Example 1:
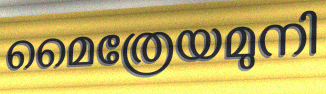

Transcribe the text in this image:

മൈത്രേയമുനി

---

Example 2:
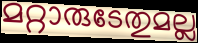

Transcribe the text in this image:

മറ്റാരുടേതുമല്ല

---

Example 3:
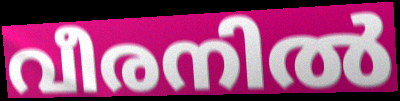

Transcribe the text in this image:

വീരനിൽ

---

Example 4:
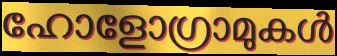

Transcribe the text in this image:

ഹോളോഗ്രാമുകൾ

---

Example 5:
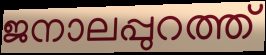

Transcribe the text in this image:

ജനാലപ്പുറത്ത്